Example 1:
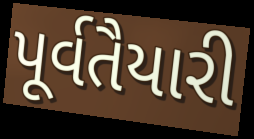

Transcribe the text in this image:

પૂર્વતૈયારી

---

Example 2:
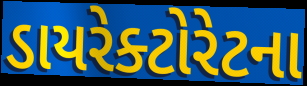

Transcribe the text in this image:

ડાયરેક્ટોરેટના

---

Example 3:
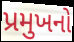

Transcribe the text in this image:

પ્રમુખનો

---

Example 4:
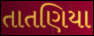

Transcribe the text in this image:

તાતણિયા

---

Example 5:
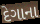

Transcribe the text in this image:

દેગાના